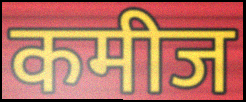
कमीज